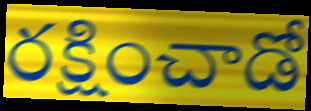
రక్షించాడో